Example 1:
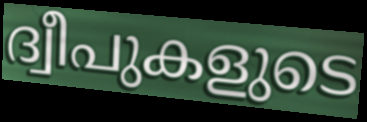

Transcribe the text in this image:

ദ്വീപുകളുടെ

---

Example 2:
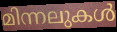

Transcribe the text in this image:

മിന്നലുകൾ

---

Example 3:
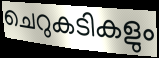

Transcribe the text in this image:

ചെറുകടികളും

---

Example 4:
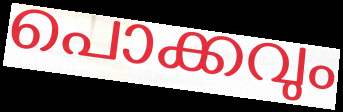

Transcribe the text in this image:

പൊക്കവും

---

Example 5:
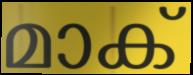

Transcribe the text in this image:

മാക്